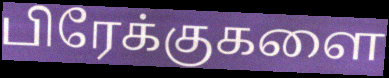
பிரேக்குகளை